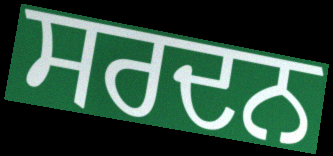
ਸਰਦਨ